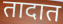
तादात